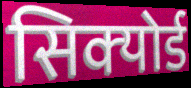
सिक्‍योर्ड